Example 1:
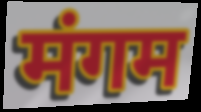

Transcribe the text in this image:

मंगम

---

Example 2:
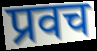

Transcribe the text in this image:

प्रवच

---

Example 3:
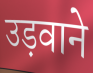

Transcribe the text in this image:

उड़वाने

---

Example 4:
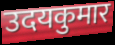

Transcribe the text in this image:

उदयकुमार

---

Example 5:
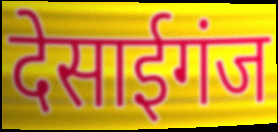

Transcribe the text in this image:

देसाईगंज